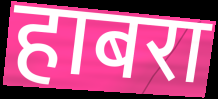
हाबरा